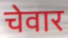
चेवार